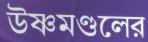
উষ্ণমণ্ডলের